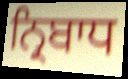
ਨ੍ਰਿਬਾਧ